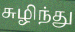
சுழிந்து